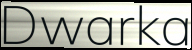
Dwarka